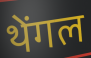
थेंगल